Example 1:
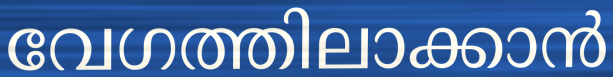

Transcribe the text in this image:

വേഗത്തിലാക്കാൻ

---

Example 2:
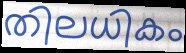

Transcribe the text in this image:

തിലധികം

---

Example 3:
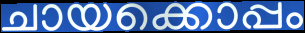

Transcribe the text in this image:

ചായക്കൊപ്പം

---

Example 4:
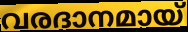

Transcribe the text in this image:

വരദാനമായ്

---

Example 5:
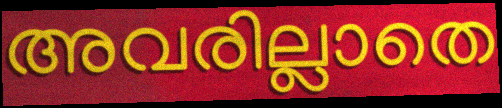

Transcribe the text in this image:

അവരില്ലാതെ